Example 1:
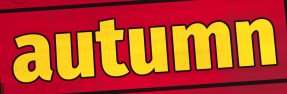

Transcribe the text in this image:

autumn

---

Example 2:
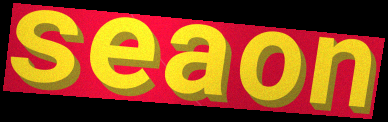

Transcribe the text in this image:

seaon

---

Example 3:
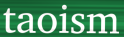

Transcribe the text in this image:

taoism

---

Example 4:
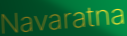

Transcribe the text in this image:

Navaratna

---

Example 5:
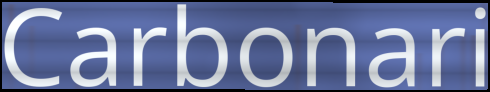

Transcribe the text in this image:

Carbonari